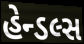
હેન્ડલ્સ